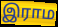
இராம